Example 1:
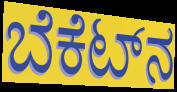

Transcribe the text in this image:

ಬೆಕೆಟ್‌ನ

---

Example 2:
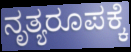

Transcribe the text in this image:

ನೃತ್ಯರೂಪಕ್ಕೆ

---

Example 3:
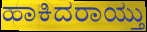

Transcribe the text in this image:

ಹಾಕಿದರಾಯ್ತು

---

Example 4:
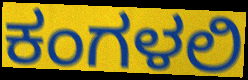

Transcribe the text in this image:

ಕಂಗಳಲಿ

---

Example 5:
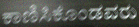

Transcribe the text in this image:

ಕಾಣಿಸಿಕೊಂಡವರು